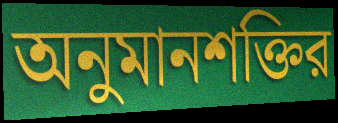
অনুমানশক্তির